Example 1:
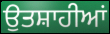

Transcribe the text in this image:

ਉਤਸ਼ਾਹੀਆਂ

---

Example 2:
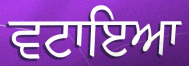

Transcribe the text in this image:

ਵਟਾਇਆ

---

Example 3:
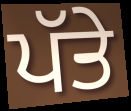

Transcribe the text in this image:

ਪੱਤੇ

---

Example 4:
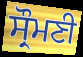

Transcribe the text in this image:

ਸ੍ਰੌਮਣੀ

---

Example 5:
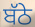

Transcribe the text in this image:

ਬੱਠੇ